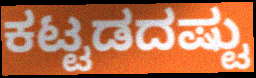
ಕಟ್ಟಡದಷ್ಟು